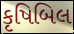
કૃષિબિલ